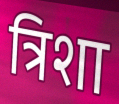
त्रिशा